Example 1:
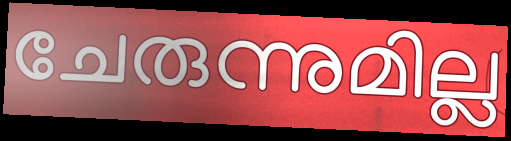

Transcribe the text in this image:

ചേരുന്നുമില്ല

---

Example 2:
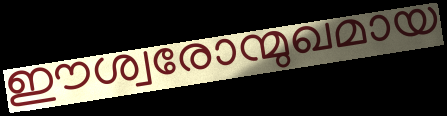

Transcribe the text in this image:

ഈശ്വരോന്മുഖമായ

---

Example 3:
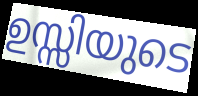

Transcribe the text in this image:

ഉസ്സിയുടെ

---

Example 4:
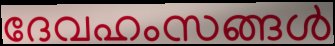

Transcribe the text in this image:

ദേവഹംസങ്ങൾ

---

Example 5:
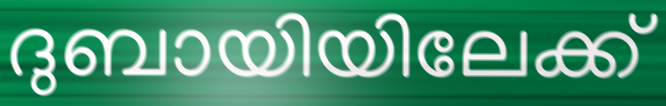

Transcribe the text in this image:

ദുബായിയിലേക്ക്